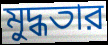
মুদ্ধতার